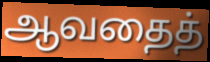
ஆவதைத்